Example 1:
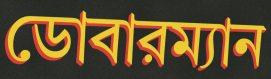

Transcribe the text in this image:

ডোবারম্যান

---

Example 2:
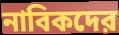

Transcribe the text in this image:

নাবিকদের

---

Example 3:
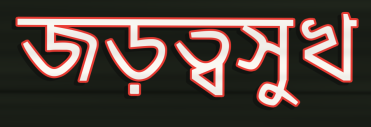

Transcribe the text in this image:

জড়ত্বসুখ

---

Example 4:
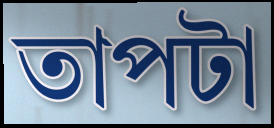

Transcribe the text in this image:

তাপটা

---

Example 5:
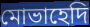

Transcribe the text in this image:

মোভাহেদি